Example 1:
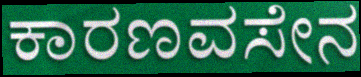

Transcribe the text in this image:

ಕಾರಣವಸೇನ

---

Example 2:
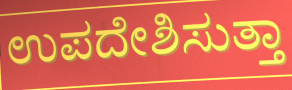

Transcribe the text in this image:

ಉಪದೇಶಿಸುತ್ತಾ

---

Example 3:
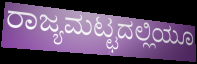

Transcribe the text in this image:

ರಾಜ್ಯಮಟ್ಟದಲ್ಲಿಯೂ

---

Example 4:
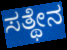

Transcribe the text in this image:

ಸತ್ಥೇನ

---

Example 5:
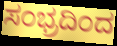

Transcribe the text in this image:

ಸಂಭ್ರದಿಂದ